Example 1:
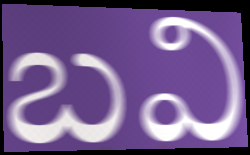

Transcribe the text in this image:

బవి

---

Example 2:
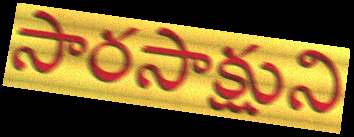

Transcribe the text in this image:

సారసాక్షుని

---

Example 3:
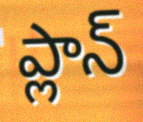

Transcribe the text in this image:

ప్లాన్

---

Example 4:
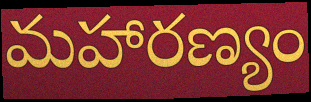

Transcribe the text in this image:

మహారణ్యం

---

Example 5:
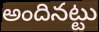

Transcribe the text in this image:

అందినట్టు